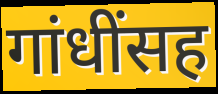
गांधींसह